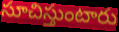
సూచిస్తుంటారు